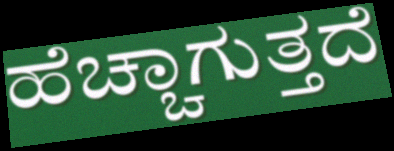
ಹೆಚ್ಚಾಗುತ್ತದೆ